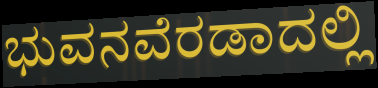
ಭುವನವೆರಡಾದಲ್ಲಿ